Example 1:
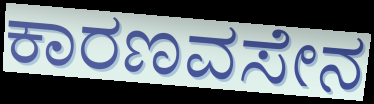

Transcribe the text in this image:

ಕಾರಣವಸೇನ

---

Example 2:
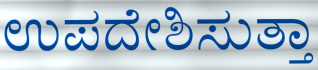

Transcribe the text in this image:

ಉಪದೇಶಿಸುತ್ತಾ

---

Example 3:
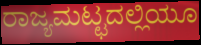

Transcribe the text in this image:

ರಾಜ್ಯಮಟ್ಟದಲ್ಲಿಯೂ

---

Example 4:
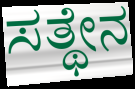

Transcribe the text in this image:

ಸತ್ಥೇನ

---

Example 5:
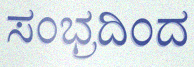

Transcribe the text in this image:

ಸಂಭ್ರದಿಂದ